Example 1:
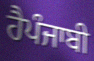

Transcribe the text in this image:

ਹੈਪੰਜਾਬੀ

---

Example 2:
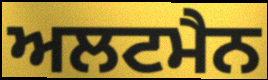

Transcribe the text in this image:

ਅਲਟਮੈਨ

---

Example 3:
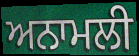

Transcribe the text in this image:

ਅਨਾਮਲੀ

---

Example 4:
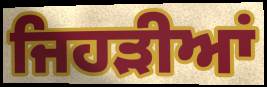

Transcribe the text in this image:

ਜਿਹੜੀਆਂ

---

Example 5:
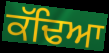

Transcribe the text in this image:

ਕੱਢਿਆ